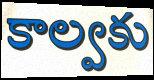
కాల్వకు